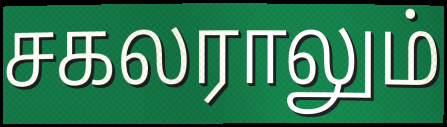
சகலராலும்